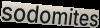
sodomites